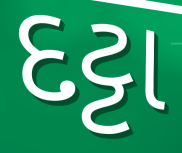
દટ્ટા